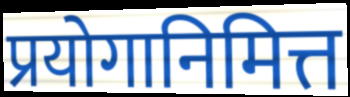
प्रयोगानिमित्त